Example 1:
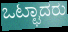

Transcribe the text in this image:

ಒಟ್ಟಾದರು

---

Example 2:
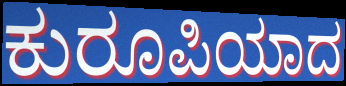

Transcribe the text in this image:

ಕುರೂಪಿಯಾದ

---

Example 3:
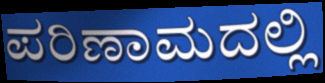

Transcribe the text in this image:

ಪರಿಣಾಮದಲ್ಲಿ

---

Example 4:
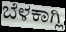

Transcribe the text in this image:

ಬೆಳಕಾಗ್ಲಿ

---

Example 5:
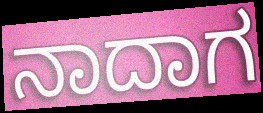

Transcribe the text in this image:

ನಾದಾಗ